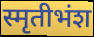
स्मृतीभंश